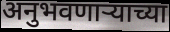
अनुभवणार्‍याच्या